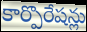
కార్పొరేషన్లు